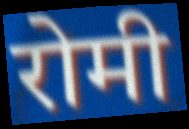
रोमी